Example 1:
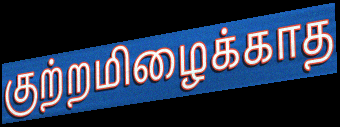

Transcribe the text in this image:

குற்றமிழைக்காத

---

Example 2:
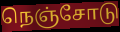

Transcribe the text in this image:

நெஞ்சோடு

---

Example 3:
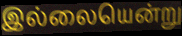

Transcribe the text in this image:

இல்லையென்று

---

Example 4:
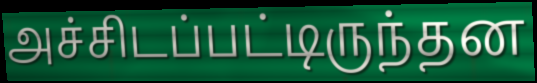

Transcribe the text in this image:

அச்சிடப்பட்டிருந்தன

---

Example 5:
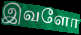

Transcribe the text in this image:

இவளோ